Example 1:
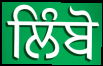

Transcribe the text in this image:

ਲਿੰਬੋ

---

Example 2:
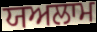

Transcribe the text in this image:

ਯਅਲਾਮ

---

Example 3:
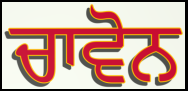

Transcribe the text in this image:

ਚਾਵੋਨ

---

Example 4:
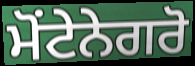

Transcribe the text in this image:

ਮੋਂਟੇਨੇਗਰੋ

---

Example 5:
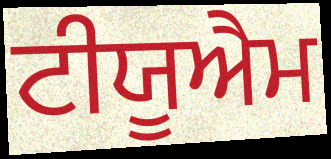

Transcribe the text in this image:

ਟੀਯੂਐਮ